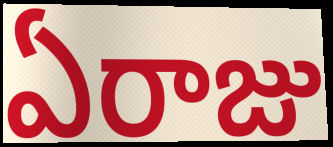
ఏరాజు